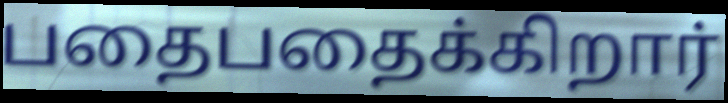
பதைபதைக்கிறார்